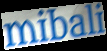
mibali